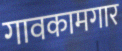
गावकामगार